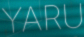
YARU